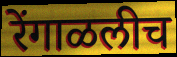
रेंगाळलीच